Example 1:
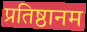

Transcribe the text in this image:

प्रतिष्ठानम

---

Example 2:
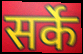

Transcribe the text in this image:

सर्के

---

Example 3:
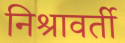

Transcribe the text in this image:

निश्रावर्ती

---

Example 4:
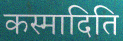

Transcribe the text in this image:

कस्मादिति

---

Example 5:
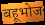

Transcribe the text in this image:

बहूभोज